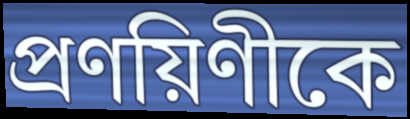
প্রণয়িণীকে